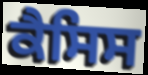
ਕੈਸਿਸ